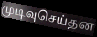
முடிவுசெய்தன